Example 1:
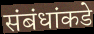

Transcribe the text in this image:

संबंधांकडे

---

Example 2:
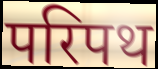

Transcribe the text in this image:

परिपथ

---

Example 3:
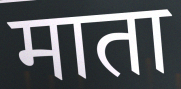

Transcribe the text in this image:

माता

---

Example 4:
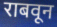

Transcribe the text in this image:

राबवून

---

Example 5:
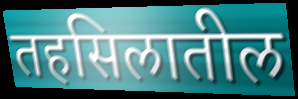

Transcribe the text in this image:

तहसिलातील